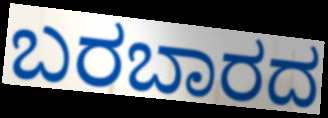
ಬರಬಾರದ